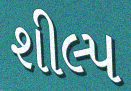
શીલ્પ